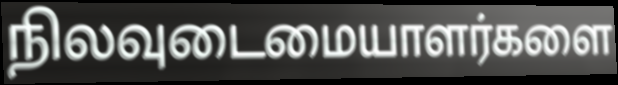
நிலவுடைமையாளர்களை